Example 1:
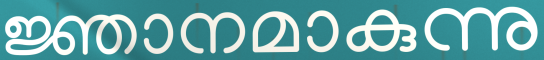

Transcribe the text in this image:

ജ്ഞാനമാകുന്നു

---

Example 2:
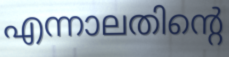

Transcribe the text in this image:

എന്നാലതിന്റെ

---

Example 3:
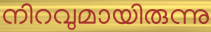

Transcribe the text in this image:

നിറവുമായിരുന്നു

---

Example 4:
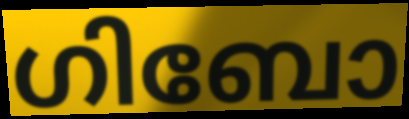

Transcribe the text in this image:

ഗിബോ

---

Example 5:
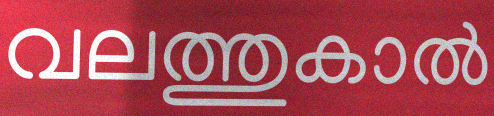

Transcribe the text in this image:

വലത്തുകാൽ